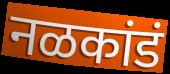
नळकांडं